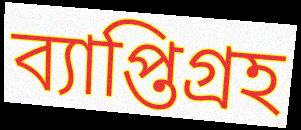
ব্যাপ্তিগ্রহ